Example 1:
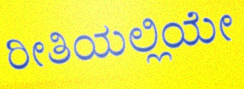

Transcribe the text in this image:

ರೀತಿಯಲ್ಲಿಯೇ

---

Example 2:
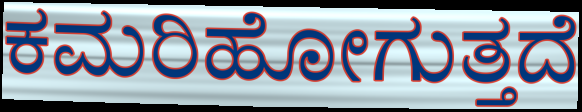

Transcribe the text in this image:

ಕಮರಿಹೋಗುತ್ತದೆ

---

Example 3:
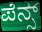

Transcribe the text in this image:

ಪೆನ್ಸ್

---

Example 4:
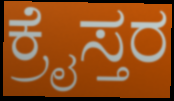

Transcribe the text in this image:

ಕ್ರೈಸ್ತರ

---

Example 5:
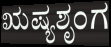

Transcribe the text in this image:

ಋಷ್ಯಶೃಂಗ